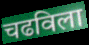
चढविला